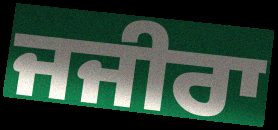
ਜਜੀਰਾ